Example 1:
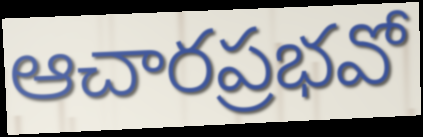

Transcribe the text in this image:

ఆచారప్రభవో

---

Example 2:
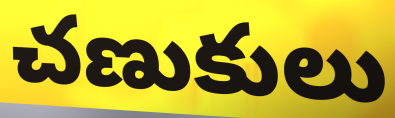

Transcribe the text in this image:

చణుకులు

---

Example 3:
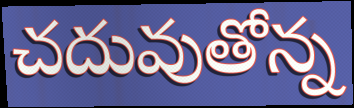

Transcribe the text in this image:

చదువుతోన్న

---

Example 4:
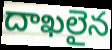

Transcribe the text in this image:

దాఖలైన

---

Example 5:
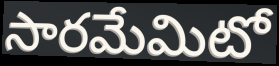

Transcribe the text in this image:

సారమేమిటో